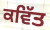
ਕਵਿੱਤ